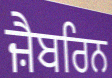
ਜ਼ੈਬਰਿਨ